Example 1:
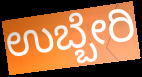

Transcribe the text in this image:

ಉಬ್ಬೇರಿ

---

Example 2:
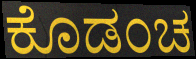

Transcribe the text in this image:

ಕೊಡಂಚ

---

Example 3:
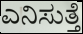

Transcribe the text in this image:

ಎನಿಸುತ್ತೆ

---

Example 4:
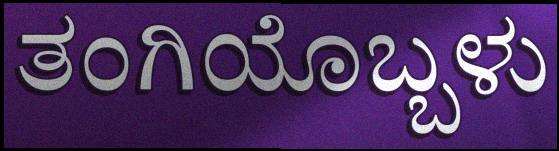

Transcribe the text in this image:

ತಂಗಿಯೊಬ್ಬಳು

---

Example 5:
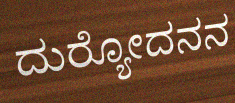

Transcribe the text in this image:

ದುರ್‍ಯೋದನನ